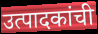
उत्पादकांची